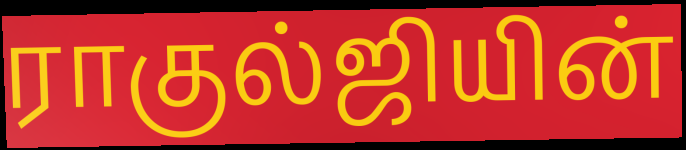
ராகுல்ஜியின்